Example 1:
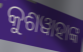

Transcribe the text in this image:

କୁଶୱାହାଙ୍କ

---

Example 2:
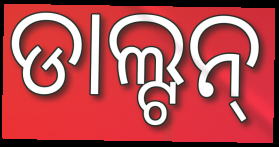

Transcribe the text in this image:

ଡାଲ୍ଟନ୍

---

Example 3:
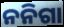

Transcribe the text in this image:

ନନିଗା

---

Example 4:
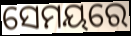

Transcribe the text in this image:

ସେମୟରେ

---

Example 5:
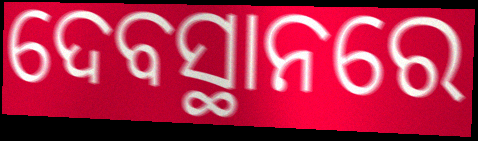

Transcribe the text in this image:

ଦେବସ୍ଥାନରେ